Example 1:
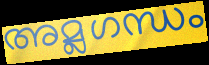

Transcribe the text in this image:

അമ്ലഗന്ധം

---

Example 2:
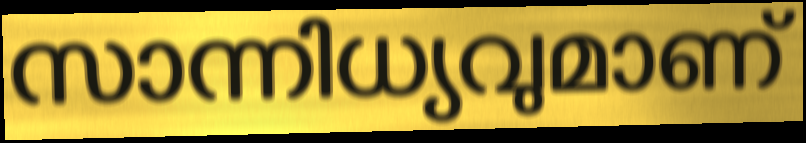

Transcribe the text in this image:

സാന്നിധ്യവുമാണ്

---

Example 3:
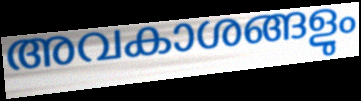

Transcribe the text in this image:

അവകാശങ്ങളും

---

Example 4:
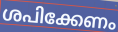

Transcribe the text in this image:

ശപിക്കേണം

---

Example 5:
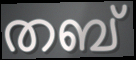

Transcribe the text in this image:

തബ്